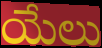
యేలు